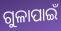
ଗୁଳାପାଇଁ